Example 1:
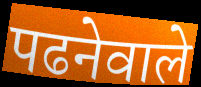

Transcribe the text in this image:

पढनेवाले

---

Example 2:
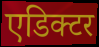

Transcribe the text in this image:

एडिक्टर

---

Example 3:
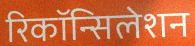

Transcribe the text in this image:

रिकॉन्सिलेशन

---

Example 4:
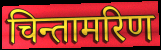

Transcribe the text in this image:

चिन्तामरिण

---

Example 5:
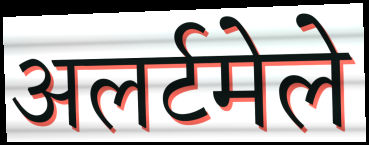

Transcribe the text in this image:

अलर्टमेले